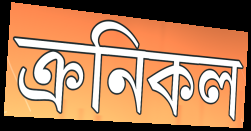
ক্রনিকল